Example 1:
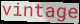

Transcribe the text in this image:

vintage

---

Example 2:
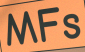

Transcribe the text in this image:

MFs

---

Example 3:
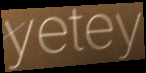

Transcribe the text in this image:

yetey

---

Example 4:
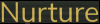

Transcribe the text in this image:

Nurture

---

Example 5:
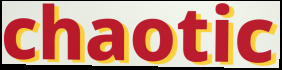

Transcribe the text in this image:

chaotic